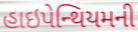
હાઇપેન્થિયમની